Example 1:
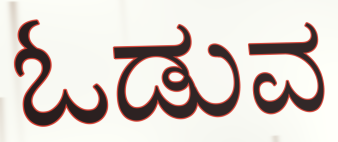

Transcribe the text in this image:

ಓಡುವ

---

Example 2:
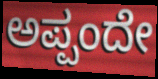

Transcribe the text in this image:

ಅಪ್ಪಂದೇ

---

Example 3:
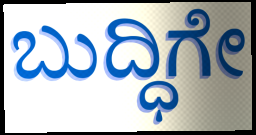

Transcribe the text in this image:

ಬುದ್ಧಿಗೇ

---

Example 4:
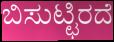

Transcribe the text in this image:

ಬಿಸುಟ್ಟಿರದೆ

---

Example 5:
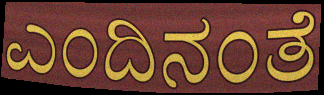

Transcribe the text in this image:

ಎಂದಿನಂತೆ